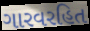
ગારવરહિત